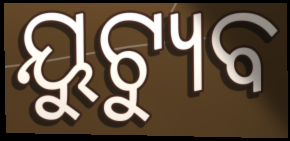
ୟୁଟ୍ୟୁବ